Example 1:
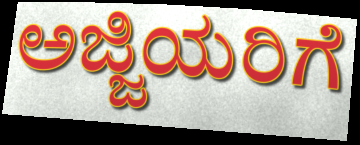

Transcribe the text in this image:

ಅಜ್ಜಿಯರಿಗೆ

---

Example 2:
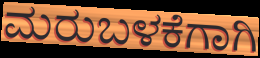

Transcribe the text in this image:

ಮರುಬಳಕೆಗಾಗಿ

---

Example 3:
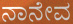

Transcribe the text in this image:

ನಾನೇವ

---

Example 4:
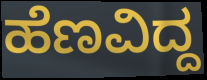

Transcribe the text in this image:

ಹೆಣವಿದ್ದ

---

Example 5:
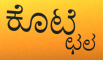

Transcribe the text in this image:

ಕೊಟ್ಟೈ